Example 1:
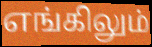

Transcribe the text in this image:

எங்கிலும்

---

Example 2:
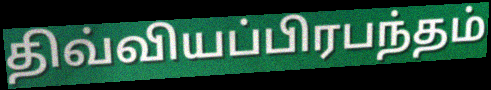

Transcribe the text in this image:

திவ்வியப்பிரபந்தம்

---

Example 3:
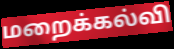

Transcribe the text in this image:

மறைக்கல்வி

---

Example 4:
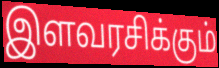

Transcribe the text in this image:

இளவரசிக்கும்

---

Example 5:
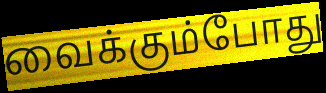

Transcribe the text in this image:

வைக்கும்போது